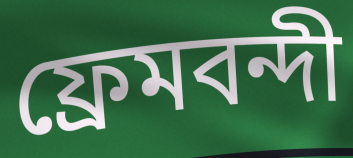
ফ্রেমবন্দী